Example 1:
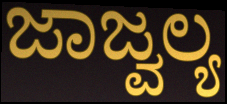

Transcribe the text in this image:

ಜಾಜ್ವಲ್ಯ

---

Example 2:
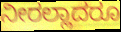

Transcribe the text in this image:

ನೀರಲ್ಲಾದರೂ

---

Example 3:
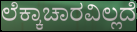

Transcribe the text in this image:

ಲೆಕ್ಕಾಚಾರವಿಲ್ಲದೆ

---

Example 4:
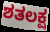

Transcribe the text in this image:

ಶತಲಕ್ಷ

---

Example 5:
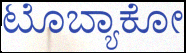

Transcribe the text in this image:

ಟೊಬ್ಯಾಕೋ